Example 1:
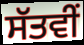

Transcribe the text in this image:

ਸੱਤਵੀਂ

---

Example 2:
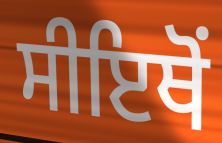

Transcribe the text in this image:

ਸੀਇਥੋਂ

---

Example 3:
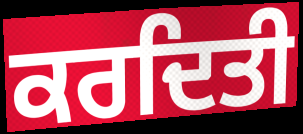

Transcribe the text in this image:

ਕਰਦਿਤੀ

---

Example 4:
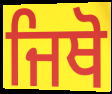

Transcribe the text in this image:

ਜਿਥੋ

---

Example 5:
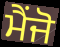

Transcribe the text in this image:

ਮੈਂਜੋ